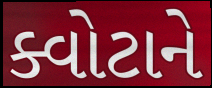
ક્વોટાને